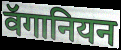
वॅगानियन